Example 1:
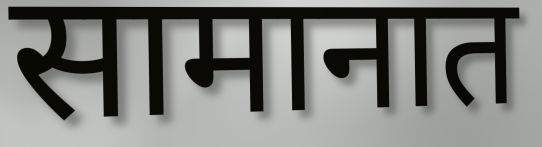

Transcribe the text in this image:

सामानात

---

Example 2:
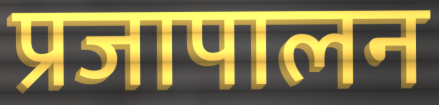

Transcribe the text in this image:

प्रजापालन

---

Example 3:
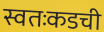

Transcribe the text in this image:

स्वतःकडची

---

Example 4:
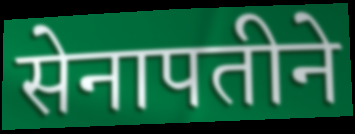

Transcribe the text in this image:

सेनापतीने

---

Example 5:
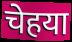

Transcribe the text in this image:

चेहया